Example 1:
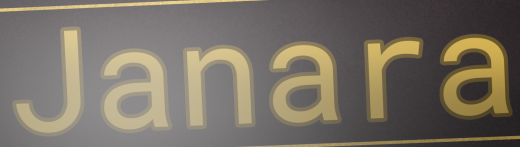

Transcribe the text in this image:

Janara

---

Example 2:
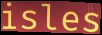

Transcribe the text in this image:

isles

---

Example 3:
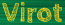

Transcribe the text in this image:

Virot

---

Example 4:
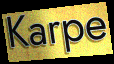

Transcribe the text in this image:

Karpe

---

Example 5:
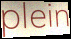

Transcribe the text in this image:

plein